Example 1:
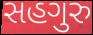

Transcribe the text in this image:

સહગુરુ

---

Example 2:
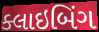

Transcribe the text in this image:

ક્લાઇબિંગ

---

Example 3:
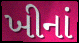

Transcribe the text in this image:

ખીનાં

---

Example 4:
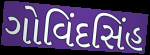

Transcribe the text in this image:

ગોવિંદસિંહ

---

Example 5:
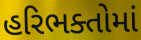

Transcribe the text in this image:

હરિભક્તોમાં